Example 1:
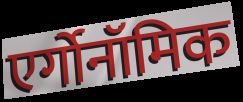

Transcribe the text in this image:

एर्गोनॉमिक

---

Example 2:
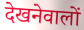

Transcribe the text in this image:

देखनेवालों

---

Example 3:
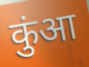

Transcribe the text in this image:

कुंआ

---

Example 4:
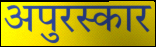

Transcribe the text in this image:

अपुरस्कार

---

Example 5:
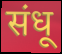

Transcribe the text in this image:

संधू